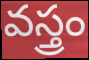
వస్త్రం